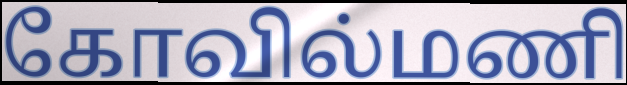
கோவில்மணி